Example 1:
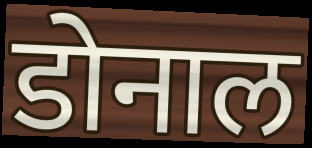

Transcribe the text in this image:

डोनाल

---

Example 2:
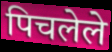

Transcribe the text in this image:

पिचलेले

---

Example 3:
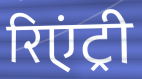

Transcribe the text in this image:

रिएंट्री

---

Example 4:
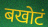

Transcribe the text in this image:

बखोटं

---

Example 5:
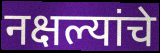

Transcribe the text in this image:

नक्षल्यांचे